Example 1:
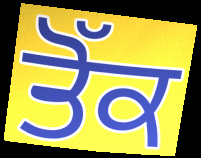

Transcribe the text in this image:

ਤੋੱਕ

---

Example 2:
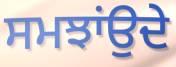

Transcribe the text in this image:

ਸਮਝਾਂਉਦੇ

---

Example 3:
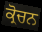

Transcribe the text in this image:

ਕ੍ਰੋਚਨ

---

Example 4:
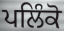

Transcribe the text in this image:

ਪਲਿੰਕੋ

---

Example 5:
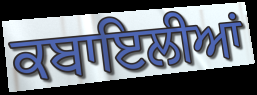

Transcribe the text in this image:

ਕਬਾਇਲੀਆਂ